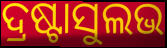
ଦ୍ରଷ୍ଟାସୁଲଭ